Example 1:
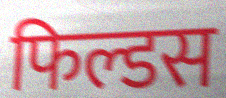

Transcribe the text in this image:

फिल्डस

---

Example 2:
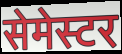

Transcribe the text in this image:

सेमेस्टर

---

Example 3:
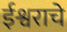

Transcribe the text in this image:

ईश्वराचे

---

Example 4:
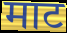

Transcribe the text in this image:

माट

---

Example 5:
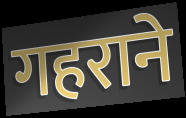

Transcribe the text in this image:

गहराने